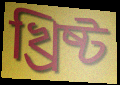
খ্রিষ্ট